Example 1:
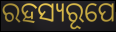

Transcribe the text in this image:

ରହସ୍ୟରୂପେ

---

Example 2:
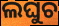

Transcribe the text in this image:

ଲଘୁଚ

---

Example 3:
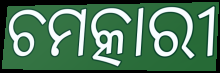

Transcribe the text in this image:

ଚମତ୍କାରୀ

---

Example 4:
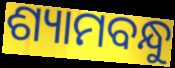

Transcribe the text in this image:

ଶ୍ୟାମବନ୍ଧୁ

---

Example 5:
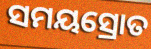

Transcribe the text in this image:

ସମୟସ୍ରୋତ